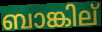
ബാങ്കില്